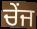
ਚੇਂਜ